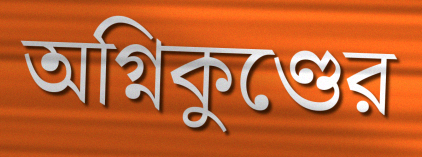
অগ্নিকুণ্ডের